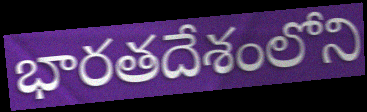
భారతదేశంలోని